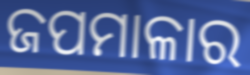
ଜପମାଳାର